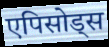
एपिसोड्स